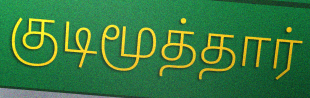
குடிமூத்தார்